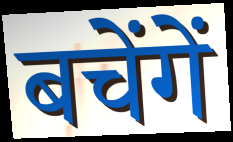
बचेंगें